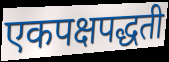
एकपक्षपद्धती